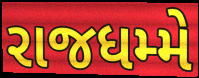
રાજધમ્મે